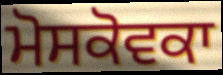
ਮੋਸਕੋਵਕਾ